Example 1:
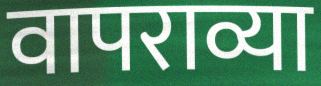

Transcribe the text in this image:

वापराव्या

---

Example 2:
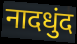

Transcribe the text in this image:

नादधुंद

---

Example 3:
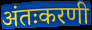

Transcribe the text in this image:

अंतःकरणी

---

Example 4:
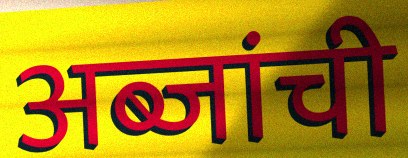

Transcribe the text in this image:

अब्जांची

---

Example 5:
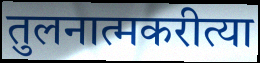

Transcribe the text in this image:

तुलनात्मकरीत्या